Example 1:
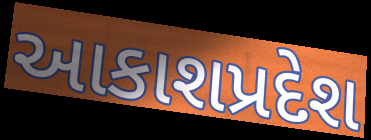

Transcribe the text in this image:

આકાશપ્રદેશ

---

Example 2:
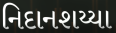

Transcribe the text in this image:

નિદાનશય્યા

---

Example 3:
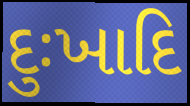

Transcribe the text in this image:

દુઃખાદિ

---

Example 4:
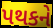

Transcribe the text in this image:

પથકને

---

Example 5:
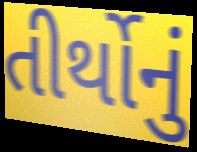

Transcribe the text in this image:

તીર્થોનું